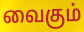
வைகும்